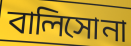
বালিসোনা